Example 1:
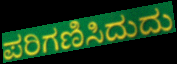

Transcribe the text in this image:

ಪರಿಗಣಿಸಿದುದು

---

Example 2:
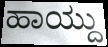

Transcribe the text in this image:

ಹಾಯ್ದು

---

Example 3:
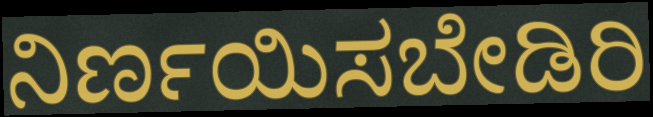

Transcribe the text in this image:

ನಿರ್ಣಯಿಸಬೇಡಿರಿ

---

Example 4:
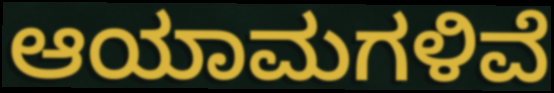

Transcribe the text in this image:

ಆಯಾಮಗಳಿವೆ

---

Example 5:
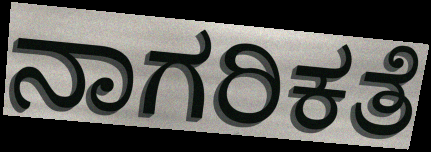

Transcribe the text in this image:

ನಾಗರಿಕತೆ